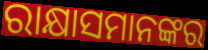
ରାକ୍ଷାସମାନଙ୍କର